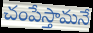
చంపేస్తామనే